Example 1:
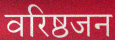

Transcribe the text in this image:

वरिष्ठजन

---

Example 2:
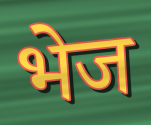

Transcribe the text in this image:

भेज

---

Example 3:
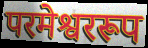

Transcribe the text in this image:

परमेश्वररूप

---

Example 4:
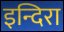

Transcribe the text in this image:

इन्दिरा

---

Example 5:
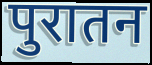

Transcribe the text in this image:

पुरातन